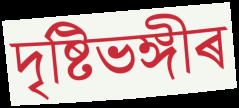
দৃষ্টিভঙ্গীৰ